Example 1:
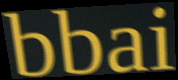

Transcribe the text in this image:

bbai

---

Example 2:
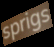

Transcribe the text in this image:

sprigs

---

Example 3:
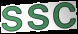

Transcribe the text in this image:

ssc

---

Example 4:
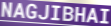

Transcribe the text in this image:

NAGJIBHAI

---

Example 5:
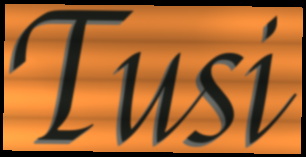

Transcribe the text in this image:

Tusi